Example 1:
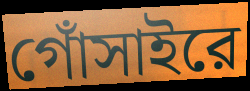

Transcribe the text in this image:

গোঁসাইরে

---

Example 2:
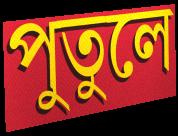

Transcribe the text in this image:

পুতুলে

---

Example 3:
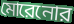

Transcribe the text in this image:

মোরেনোর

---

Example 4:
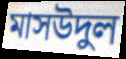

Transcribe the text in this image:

মাসউদুল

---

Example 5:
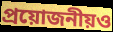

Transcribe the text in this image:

প্রয়োজনীয়ও